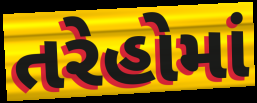
તરેહોમાં